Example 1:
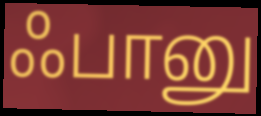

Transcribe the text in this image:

ஃபானு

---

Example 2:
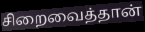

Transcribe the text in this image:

சிறைவைத்தான்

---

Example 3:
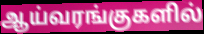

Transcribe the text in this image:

ஆய்வரங்குகளில்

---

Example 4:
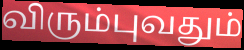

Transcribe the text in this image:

விரும்புவதும்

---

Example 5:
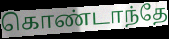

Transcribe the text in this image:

கொண்டாந்தே